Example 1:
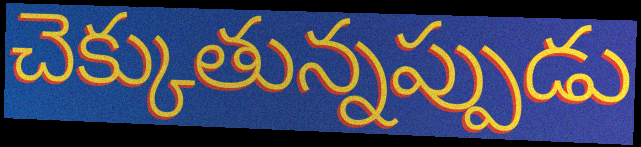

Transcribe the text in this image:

చెక్కుతున్నప్పుడు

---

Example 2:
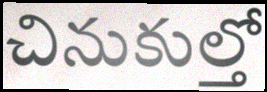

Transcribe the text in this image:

చినుకుల్తో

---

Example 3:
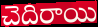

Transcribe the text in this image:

చెదిరాయి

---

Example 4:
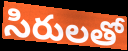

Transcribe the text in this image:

సిరులతో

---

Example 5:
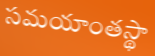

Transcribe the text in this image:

సమయాంతస్థా